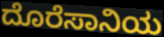
ದೊರೆಸಾನಿಯ